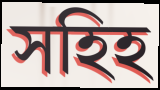
সহিহ